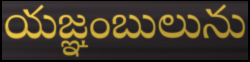
యజ్ఞంబులును